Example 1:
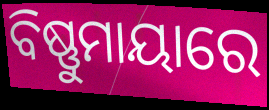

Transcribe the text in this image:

ବିଷ୍ଣୁମାୟାରେ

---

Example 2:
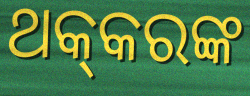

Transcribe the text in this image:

ଥକ୍‌କରଙ୍କ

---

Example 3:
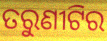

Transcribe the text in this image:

ତରୁଣୀଟିର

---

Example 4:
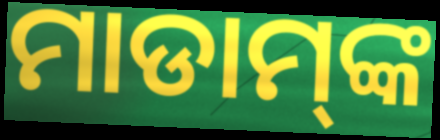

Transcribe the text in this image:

ମାଡାମ୍‌ଙ୍କ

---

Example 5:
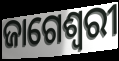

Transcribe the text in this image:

ଜାଗେଶ୍ୱରୀ